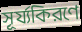
সূর্য্যকিরণে